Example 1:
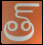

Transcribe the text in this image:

త్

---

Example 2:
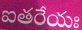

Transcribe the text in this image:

ఐతరేయః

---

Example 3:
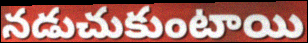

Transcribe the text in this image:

నడుచుకుంటాయి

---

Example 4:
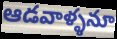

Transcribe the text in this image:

ఆడవాళ్ళనూ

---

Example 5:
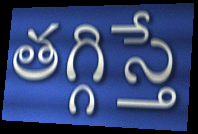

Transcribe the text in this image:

తగ్గిస్తే